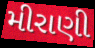
મીરાણી